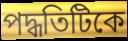
পদ্ধতিটিকে